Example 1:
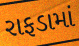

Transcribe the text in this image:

રાફડામાં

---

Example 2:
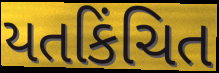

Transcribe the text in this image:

યતકિંચિત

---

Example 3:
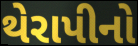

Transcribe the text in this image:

થેરાપીનો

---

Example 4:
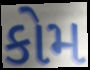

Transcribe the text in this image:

કોમ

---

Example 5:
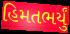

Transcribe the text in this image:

હિમતભર્યું